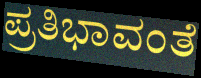
ಪ್ರತಿಭಾವಂತೆ